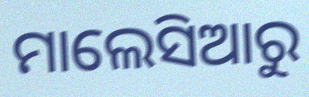
ମାଲେସିଆରୁ